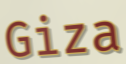
Giza